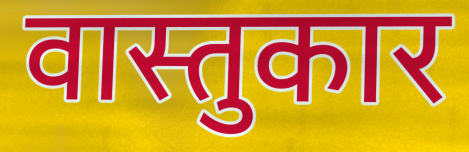
वास्तुकार